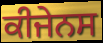
ਕੀਜੇਨਸ